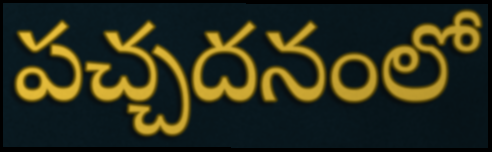
పచ్చదనంలో